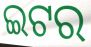
ଇଟର